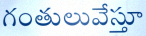
గంతులువేస్తూ